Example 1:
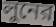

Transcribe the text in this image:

লুনের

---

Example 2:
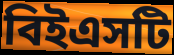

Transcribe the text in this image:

বিইএসটি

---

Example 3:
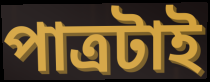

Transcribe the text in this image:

পাত্রটাই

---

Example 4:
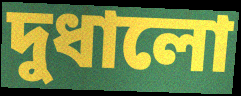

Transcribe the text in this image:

দুধালো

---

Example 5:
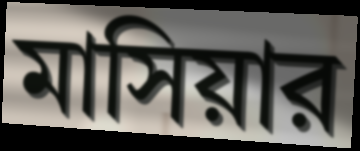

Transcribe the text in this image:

মাসিয়ার